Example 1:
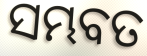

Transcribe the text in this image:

ସମ୍ଭବତ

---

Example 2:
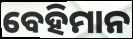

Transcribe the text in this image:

ବେହିମାନ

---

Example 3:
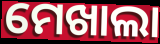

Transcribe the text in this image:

ମେଖାଲା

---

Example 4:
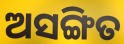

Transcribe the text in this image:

ଅସଙ୍ଗିତ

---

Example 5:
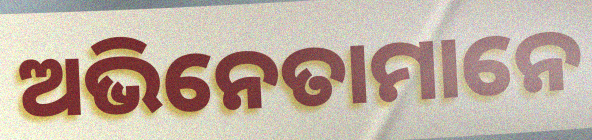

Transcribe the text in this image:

ଅଭିନେତାମାନେ